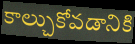
కాల్చుకోవడానికి